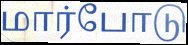
மார்போடு